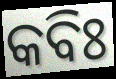
କବିଃ